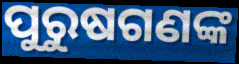
ପୁରୁଷଗଣଙ୍କ